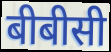
बीबीसी